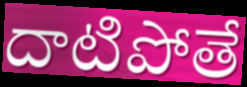
దాటిపోతే